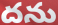
దను